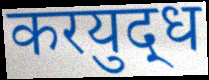
करयुद्ध